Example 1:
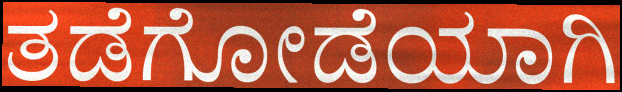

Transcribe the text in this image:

ತಡೆಗೋಡೆಯಾಗಿ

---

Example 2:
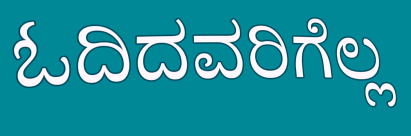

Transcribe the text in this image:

ಓದಿದವರಿಗೆಲ್ಲ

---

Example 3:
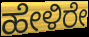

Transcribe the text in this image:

ಹೇಳಿರೇ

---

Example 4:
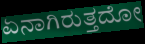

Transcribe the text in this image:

ಏನಾಗಿರುತ್ತದೋ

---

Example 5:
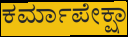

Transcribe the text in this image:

ಕರ್ಮಾಪೇಕ್ಷಾ